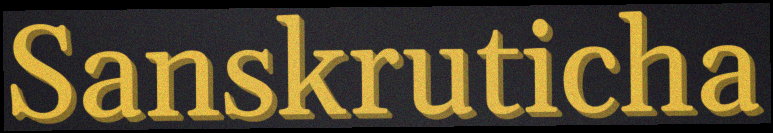
Sanskruticha